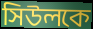
সিউলকে